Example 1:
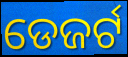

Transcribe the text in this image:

ଡେଜର୍ଟ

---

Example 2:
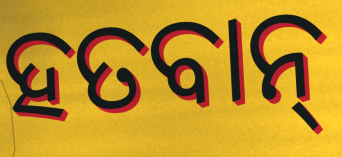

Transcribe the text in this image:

ହତବାନ୍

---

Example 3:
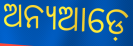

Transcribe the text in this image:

ଅନ୍ୟଆଡ଼େ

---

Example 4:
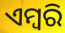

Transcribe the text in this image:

ଏମ୍ବରି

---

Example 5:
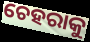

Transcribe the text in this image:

ଚେହରାକୁ